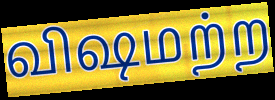
விஷமற்ற